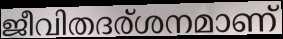
ജീവിതദര്ശനമാണ്